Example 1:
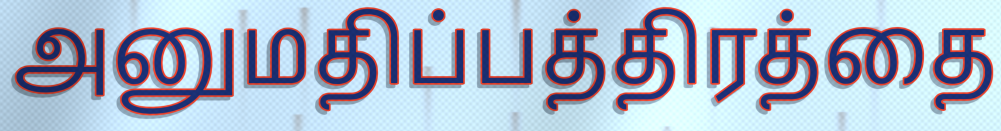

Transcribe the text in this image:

அனுமதிப்பத்திரத்தை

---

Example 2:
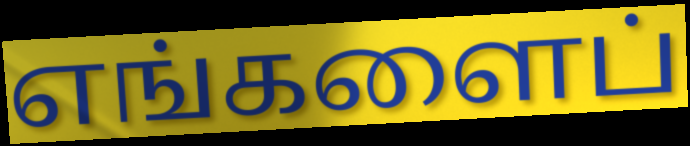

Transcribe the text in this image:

எங்களைப்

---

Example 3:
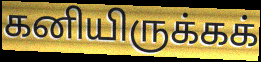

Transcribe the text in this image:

கனியிருக்கக்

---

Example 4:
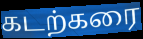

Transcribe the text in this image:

கடற்கரை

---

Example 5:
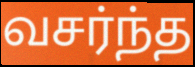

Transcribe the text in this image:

வசர்ந்த